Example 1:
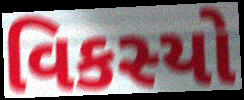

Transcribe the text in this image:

વિકસ્યો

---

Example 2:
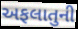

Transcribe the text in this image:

અફલાતુની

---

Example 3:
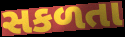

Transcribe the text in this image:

સકળતા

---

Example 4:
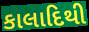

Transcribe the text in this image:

કાલાદિથી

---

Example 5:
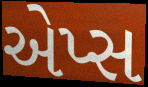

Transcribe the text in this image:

એપ્સ